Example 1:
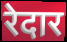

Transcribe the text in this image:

रेदार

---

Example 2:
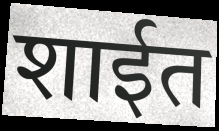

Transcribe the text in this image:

शाईत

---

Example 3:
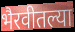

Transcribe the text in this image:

भैरवीतल्या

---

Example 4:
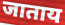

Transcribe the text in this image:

जाताय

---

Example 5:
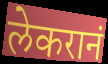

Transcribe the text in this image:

लेकरानं